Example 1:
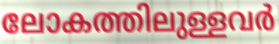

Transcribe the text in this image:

ലോകത്തിലുള്ളവർ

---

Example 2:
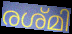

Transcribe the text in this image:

രശ്മി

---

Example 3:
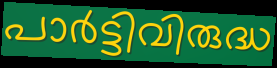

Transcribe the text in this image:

പാർട്ടിവിരുദ്ധ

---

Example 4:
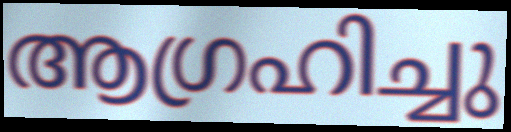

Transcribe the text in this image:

ആഗ്രഹിച്ചു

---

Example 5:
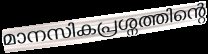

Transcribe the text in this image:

മാനസികപ്രശ്നത്തിന്റെ